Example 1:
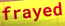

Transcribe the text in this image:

frayed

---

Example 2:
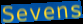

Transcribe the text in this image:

Sevens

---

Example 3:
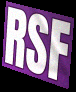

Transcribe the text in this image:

RSF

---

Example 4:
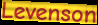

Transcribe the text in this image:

Levenson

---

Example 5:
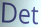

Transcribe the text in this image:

Det